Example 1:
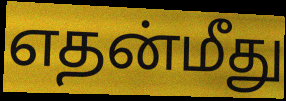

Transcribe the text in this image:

எதன்மீது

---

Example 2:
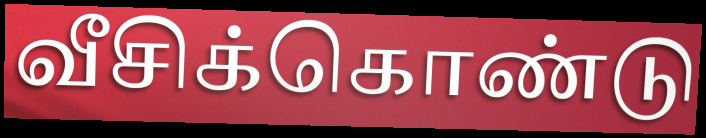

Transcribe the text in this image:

வீசிக்கொண்டு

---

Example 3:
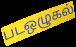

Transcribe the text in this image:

படஒழுகல்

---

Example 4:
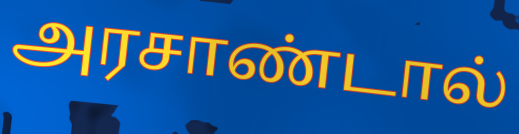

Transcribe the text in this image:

அரசாண்டால்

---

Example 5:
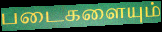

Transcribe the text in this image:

படைகளையும்